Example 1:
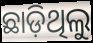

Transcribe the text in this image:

ଛାଡ଼ିଥିଲୁ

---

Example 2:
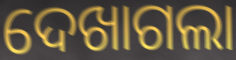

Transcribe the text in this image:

ଦେଖାଗଲା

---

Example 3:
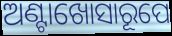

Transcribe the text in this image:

ଅଣ୍ଟାଖୋସାରୂପେ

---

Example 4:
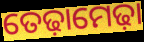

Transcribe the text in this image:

ତେଢ଼ାମେଢ଼ା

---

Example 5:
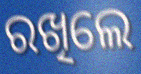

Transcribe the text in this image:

ରଖିଲେ